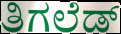
ತಿಗಲೆಡ್